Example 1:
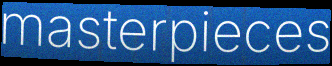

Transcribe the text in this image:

masterpieces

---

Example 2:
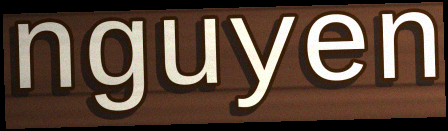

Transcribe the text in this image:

nguyen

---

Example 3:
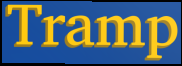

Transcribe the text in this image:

Tramp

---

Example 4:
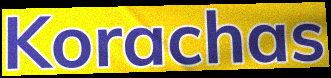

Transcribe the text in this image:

Korachas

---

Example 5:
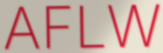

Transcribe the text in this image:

AFLW